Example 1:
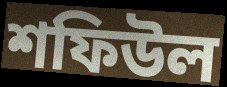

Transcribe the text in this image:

শফিউল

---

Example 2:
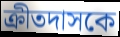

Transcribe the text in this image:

ক্রীতদাসকে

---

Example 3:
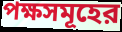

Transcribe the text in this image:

পক্ষসমূহের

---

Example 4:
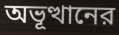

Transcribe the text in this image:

অভূত্থানের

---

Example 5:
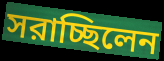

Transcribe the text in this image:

সরাচ্ছিলেন